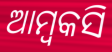
ଆମ୍ବକସି